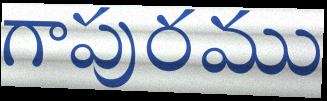
గాపురము